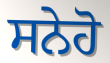
ਸਨੇਹੋ